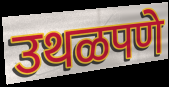
उथळपणे